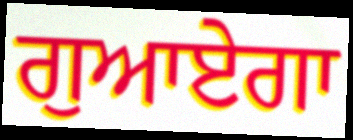
ਗੁਆਏਗਾ